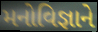
મનોવિજ્ઞાને